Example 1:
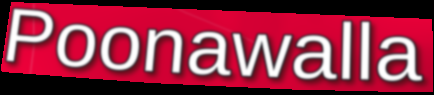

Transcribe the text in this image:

Poonawalla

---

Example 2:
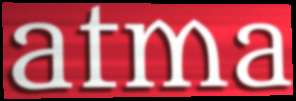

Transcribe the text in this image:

atma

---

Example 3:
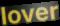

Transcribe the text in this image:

lover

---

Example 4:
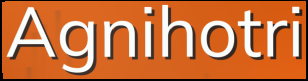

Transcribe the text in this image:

Agnihotri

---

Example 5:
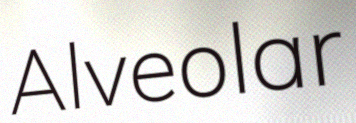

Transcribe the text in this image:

Alveolar